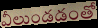
వీలుండడంతో